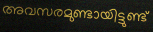
അവസരമുണ്ടായിട്ടുണ്ട്